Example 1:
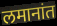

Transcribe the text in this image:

लमानांत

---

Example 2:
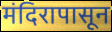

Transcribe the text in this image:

मंदिरापासून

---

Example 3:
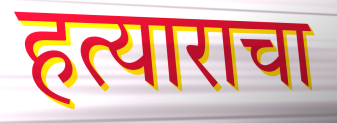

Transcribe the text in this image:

हत्याराचा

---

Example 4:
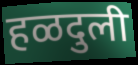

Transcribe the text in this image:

हळदुली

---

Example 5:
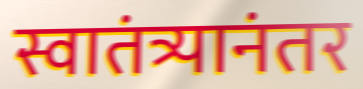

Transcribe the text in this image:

स्वातंत्र्यानंतर